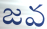
జవ